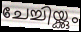
ചേച്ചിയ്ക്കും